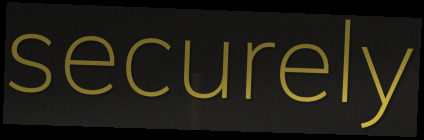
securely